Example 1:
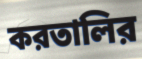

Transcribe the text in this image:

করতালির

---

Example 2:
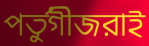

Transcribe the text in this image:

পর্তুগীজরাই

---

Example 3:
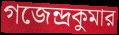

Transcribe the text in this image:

গজেন্দ্রকুমার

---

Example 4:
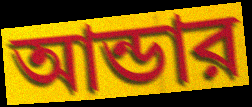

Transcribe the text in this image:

আন্ডার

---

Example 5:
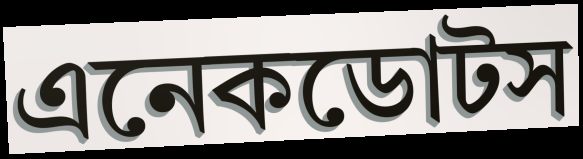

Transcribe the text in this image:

এনেকডোটস